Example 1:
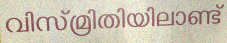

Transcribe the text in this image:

വിസ്മ്രിതിയിലാണ്ട്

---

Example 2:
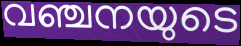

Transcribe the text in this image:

വഞ്ചനയുടെ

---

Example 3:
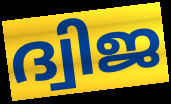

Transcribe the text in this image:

ദ്വിജ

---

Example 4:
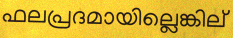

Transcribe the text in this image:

ഫലപ്രദമായില്ലെങ്കില്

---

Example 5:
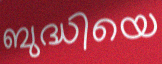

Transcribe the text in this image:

ബുദ്ധിയെ